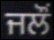
ਜਲੌਂ